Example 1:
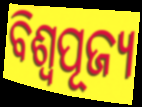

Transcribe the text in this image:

ବିଶ୍ୱପୂଜ୍ୟ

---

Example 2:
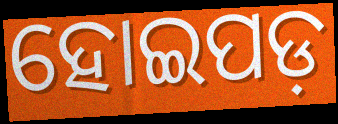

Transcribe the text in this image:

ହୋଇପଡ଼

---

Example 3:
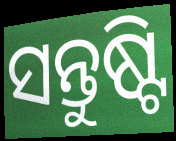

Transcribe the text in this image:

ସନ୍ତୁଷ୍ଟି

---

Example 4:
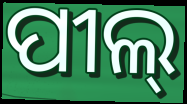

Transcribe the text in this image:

ପୀଲ୍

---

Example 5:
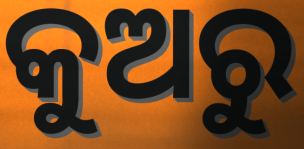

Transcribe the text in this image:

କୁଅରୁ